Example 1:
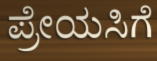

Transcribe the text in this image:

ಪ್ರೇಯಸಿಗೆ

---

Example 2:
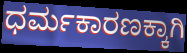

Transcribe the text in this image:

ಧರ್ಮಕಾರಣಕ್ಕಾಗಿ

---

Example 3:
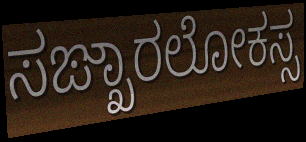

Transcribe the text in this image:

ಸಙ್ಖಾರಲೋಕಸ್ಸ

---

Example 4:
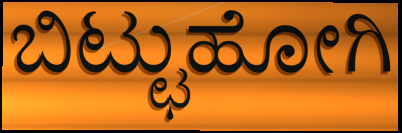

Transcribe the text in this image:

ಬಿಟ್ಟುಹೋಗಿ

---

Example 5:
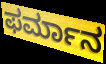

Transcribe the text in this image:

ಫರ್ಮಾನ